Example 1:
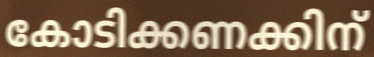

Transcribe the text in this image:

കോടിക്കണക്കിന്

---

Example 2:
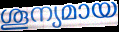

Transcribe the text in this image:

ശൂന്യമായ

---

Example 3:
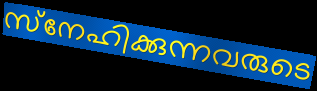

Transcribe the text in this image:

സ്‌നേഹിക്കുന്നവരുടെ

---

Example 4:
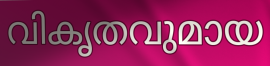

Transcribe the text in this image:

വികൃതവുമായ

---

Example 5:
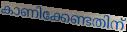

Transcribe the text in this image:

കാണിക്കേണ്ടതിന്